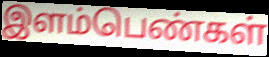
இளம்பெண்கள்